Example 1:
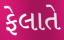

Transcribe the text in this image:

ફેલાતે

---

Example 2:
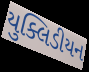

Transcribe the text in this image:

યુક્લિડીયન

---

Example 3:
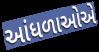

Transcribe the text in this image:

આંધળાઓએ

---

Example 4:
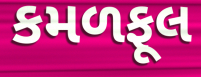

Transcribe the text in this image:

કમળફૂલ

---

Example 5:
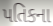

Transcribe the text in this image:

પતિકના